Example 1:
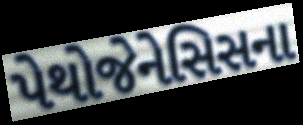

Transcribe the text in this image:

પેથોજેનેસિસના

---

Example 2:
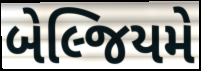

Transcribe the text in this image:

બેલ્જિયમે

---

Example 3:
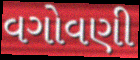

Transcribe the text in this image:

વગોવણી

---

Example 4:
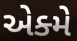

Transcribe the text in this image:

એક્મે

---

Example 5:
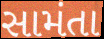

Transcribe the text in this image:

સામંતા